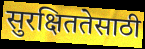
सुरक्षिततेसाठी